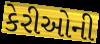
કેરીઓની